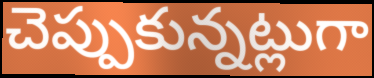
చెప్పుకున్నట్లుగా